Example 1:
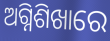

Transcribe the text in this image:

ଅଗ୍ନିଶିଖାରେ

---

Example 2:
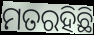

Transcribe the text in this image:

ମତରହିଛି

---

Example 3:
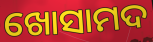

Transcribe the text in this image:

ଖୋସାମଦ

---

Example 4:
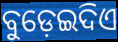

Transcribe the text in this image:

ବୁଡ଼େଇଦିଏ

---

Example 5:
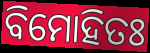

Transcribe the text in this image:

ବିମୋହିତଃ